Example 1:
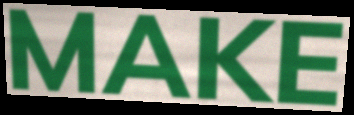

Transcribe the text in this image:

MAKE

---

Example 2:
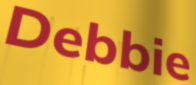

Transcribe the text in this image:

Debbie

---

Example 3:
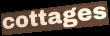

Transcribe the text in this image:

cottages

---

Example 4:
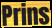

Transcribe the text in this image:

Prins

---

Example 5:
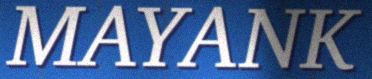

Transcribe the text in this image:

MAYANK